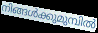
നിങ്ങൾക്കുമുമ്പിൽ